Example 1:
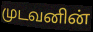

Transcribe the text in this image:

முடவனின்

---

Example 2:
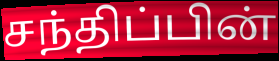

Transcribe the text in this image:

சந்திப்பின்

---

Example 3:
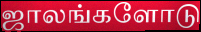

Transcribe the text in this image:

ஜாலங்களோடு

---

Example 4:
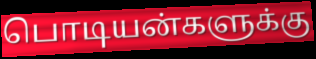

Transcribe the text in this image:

பொடியன்களுக்கு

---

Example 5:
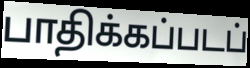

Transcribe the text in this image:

பாதிக்கப்படப்